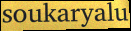
soukaryalu